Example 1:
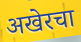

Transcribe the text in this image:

अखेरचा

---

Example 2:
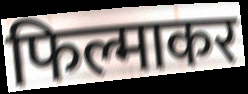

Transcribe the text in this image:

फिल्माकर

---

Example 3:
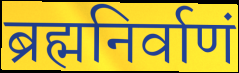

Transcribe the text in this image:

ब्रह्मनिर्वाणं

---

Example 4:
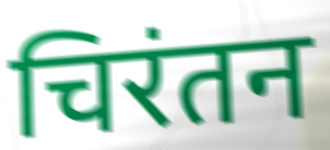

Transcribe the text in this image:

चिरंतन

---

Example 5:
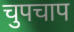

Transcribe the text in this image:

चुपचाप